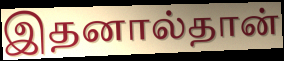
இதனால்தான்